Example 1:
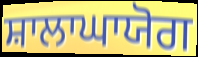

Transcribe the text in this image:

ਸ਼ਾਲਾਘਾਯੋਗ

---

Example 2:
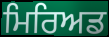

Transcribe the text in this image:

ਮਿਰਿਅਡ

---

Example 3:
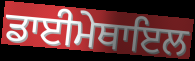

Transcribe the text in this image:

ਡਾਈਮੇਥਾਇਲ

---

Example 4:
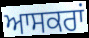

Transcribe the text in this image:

ਆਸਕਰਾਂ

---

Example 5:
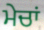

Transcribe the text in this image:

ਮੇਚਾਂ